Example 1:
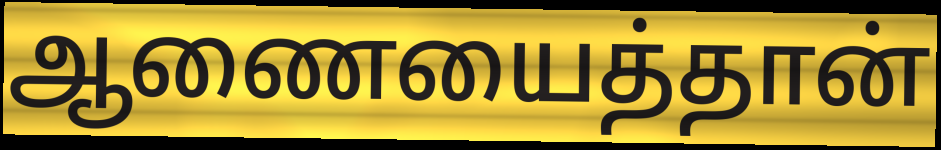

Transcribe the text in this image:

ஆணையைத்தான்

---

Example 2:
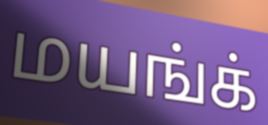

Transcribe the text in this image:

மயங்க்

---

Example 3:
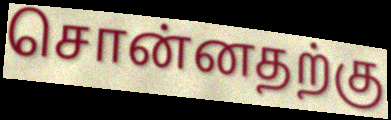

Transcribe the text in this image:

சொன்னதற்கு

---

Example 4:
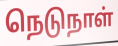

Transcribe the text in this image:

நெடுநாள்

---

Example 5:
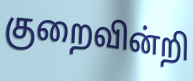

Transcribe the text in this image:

குறைவின்றி